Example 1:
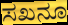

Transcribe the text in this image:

ಸಖನೂ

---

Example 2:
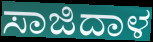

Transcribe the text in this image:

ಸಾಜಿದಾಳ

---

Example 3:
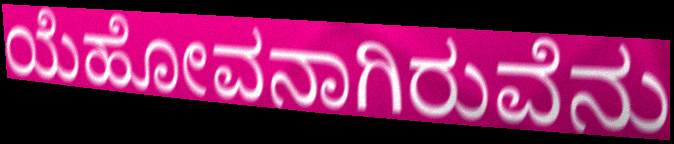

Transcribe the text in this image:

ಯೆಹೋವನಾಗಿರುವೆನು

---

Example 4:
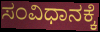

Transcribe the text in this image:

ಸಂವಿಧಾನಕ್ಕೆ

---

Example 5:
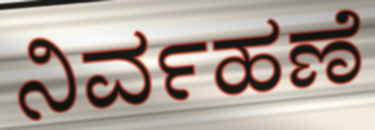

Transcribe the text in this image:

ನಿರ್ವಹಣೆ